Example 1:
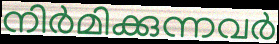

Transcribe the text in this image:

നിർമിക്കുന്നവർ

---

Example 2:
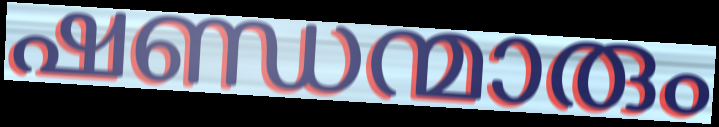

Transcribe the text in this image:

ഷണ്ഡന്മാരും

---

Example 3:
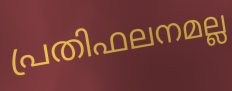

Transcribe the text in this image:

പ്രതിഫലനമല്ല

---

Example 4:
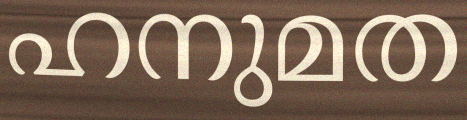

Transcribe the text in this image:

ഹനുമത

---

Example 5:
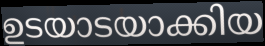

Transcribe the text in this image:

ഉടയാടയാക്കിയ